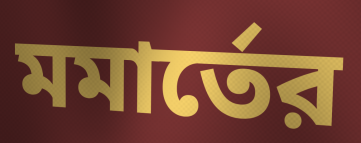
মমার্তের